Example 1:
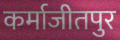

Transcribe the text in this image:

कर्माजीतपुर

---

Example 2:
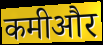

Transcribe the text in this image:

कमीऔर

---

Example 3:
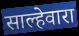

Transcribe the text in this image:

साल्हेवारा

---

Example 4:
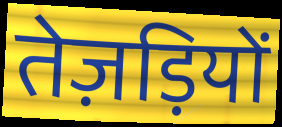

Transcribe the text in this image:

तेज़ड़ियों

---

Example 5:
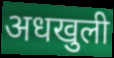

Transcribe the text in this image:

अधखुली